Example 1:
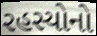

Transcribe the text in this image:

રહસ્યોનો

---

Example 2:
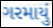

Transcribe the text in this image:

ગરમાયું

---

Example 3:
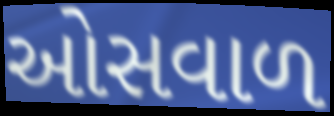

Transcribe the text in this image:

ઓસવાળ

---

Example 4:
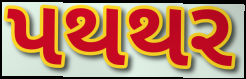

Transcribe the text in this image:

પથથર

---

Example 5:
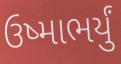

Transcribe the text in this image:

ઉષ્માભર્યું